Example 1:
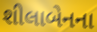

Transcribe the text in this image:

શીલાબેનના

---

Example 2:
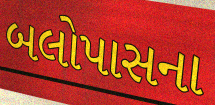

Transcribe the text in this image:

બલોપાસના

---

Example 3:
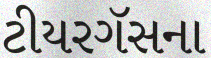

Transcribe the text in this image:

ટીયરગૅસના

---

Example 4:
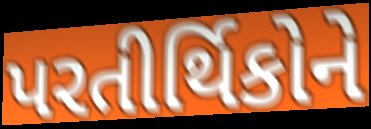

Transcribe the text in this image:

પરતીર્થિકોને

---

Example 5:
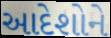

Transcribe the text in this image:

આદેશોને